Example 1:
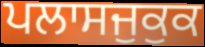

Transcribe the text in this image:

ਪਲਾਸਜੁਕੁਕ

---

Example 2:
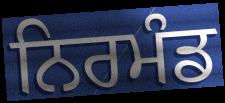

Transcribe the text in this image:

ਨਿਰਮੰਡ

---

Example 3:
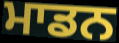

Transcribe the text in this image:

ਮਾਡਨ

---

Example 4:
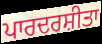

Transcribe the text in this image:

ਪਾਰਦਰਸ਼ੀਤਾ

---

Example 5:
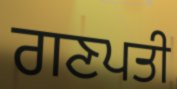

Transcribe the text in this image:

ਗਣਪਤੀ